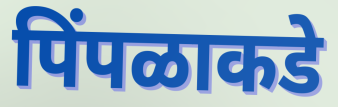
पिंपळाकडे